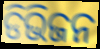
ଡିଭିଜନ